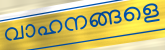
വാഹനങ്ങളെ